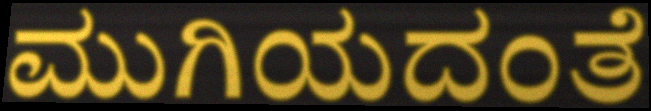
ಮುಗಿಯದಂತೆ